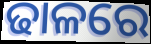
ଢାଳରେ